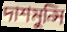
দাশমুন্সি